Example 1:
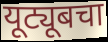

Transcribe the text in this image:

यूट्यूबचा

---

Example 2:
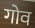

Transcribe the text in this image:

गोव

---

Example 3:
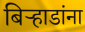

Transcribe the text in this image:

बिऱ्हाडांना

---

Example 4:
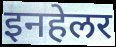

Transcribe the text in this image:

इनहेलर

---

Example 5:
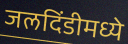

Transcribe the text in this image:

जलदिंडीमध्ये